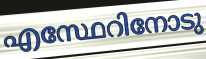
എസ്ഥേറിനോടു